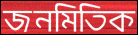
জনমিতিক